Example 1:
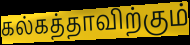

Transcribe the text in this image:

கல்கத்தாவிற்கும்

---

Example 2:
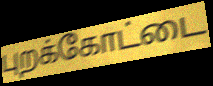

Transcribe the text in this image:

புறக்கோட்டை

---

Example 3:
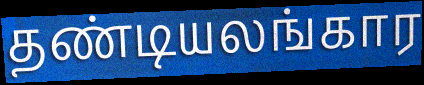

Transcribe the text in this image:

தண்டியலங்கார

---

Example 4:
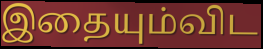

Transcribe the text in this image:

இதையும்விட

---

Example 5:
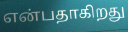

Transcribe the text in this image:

என்பதாகிறது